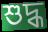
শুদ্ধ